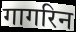
गागरिन